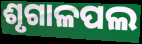
ଶୃଗାଳପଲ